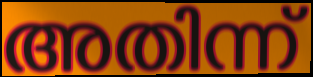
അതിന്ന്